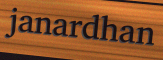
janardhan